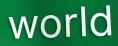
world